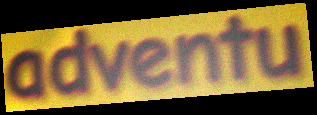
adventu